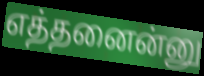
எத்தனைன்னு